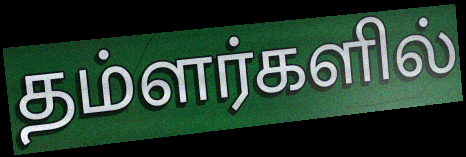
தம்ளர்களில்